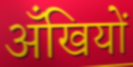
अँखियों